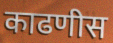
काढणीस